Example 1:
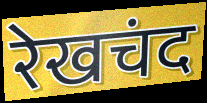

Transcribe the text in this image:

रेखचंद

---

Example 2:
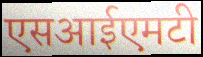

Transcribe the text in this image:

एसआईएमटी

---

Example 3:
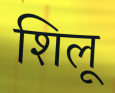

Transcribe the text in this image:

शिलू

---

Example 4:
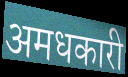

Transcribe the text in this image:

अमधकारी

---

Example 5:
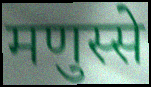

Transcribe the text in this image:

मणुस्से